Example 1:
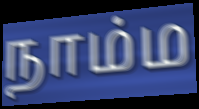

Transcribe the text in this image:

நாம்ம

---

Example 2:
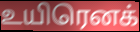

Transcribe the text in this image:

உயிரெனக்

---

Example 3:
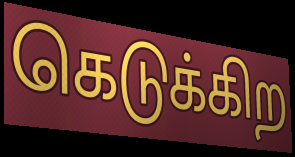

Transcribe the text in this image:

கெடுக்கிற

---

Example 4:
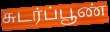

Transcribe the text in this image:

சுடர்ப்பூண்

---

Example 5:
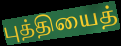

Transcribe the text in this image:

புத்தியைத்